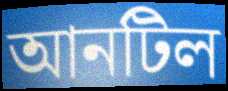
আনটিল